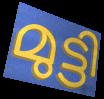
മുട്ടി